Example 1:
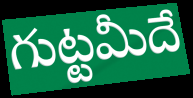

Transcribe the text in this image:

గుట్టమీదే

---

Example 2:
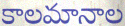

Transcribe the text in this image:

కాలమానాల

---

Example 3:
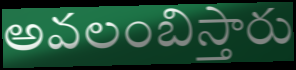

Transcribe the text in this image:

అవలంబిస్తారు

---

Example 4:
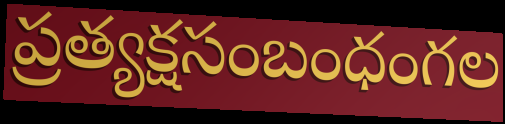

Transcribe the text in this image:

ప్రత్యక్షసంబంధంగల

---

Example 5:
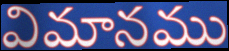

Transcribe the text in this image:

విమానము